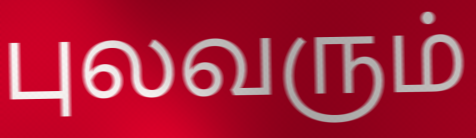
புலவரும்